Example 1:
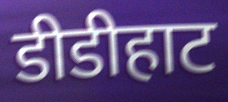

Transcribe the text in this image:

डीडीहाट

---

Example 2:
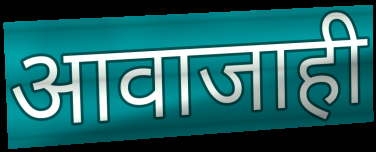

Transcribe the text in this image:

आवाजाही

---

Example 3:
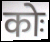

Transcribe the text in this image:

कोः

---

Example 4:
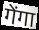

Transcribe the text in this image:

गेंगा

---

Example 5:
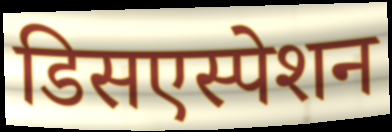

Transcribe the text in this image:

डिसएस्पेशन